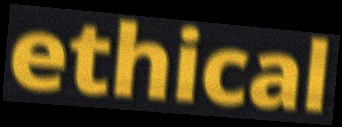
ethical